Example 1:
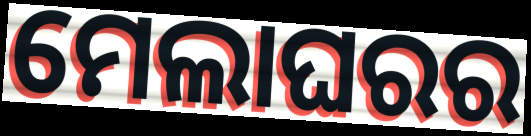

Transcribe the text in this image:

ମେଲାଘରର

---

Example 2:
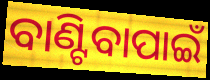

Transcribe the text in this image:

ବାଣ୍ଟିବାପାଇଁ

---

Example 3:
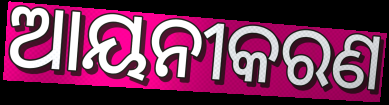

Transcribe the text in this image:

ଆୟନୀକରଣ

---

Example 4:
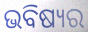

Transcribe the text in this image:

ଭବିଷ୍ୟର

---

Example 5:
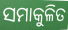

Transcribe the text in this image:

ସମାକୁଳିତ